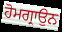
ਹੋਮਗ੍ਰਾਉਨ